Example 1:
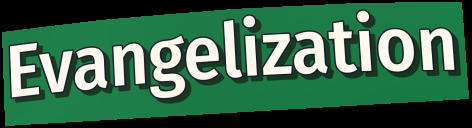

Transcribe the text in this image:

Evangelization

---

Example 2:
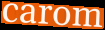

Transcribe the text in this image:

carom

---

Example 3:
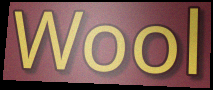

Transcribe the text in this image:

Wool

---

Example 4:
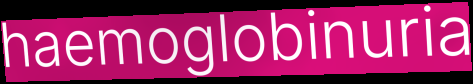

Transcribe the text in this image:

haemoglobinuria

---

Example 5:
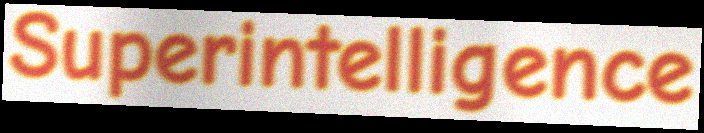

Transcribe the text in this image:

Superintelligence